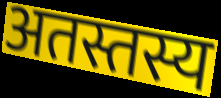
अतस्तस्य